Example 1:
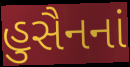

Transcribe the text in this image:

હુસૈનનાં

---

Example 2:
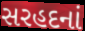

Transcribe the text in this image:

સરહદનાં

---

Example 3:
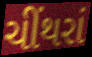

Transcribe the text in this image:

ચીંથરાં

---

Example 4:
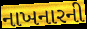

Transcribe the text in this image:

નાખનારની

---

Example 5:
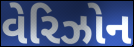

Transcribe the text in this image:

વેરિઝોન